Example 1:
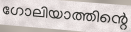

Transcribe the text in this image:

ഗോലിയാത്തിന്റെ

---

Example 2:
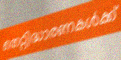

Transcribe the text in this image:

തെറ്റിദ്ധാരണകൾക്ക്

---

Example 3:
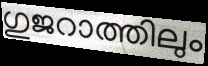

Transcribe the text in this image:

ഗുജറാത്തിലും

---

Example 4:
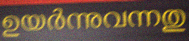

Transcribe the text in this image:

ഉയർന്നുവന്നതു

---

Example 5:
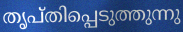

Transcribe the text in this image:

തൃപ്തിപ്പെടുത്തുന്നു